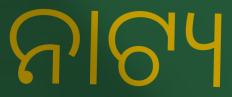
ନାଟ୍ୟ